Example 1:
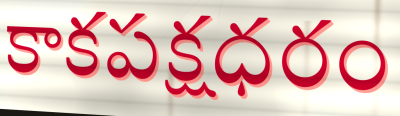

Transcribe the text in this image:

కాకపక్షధరం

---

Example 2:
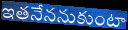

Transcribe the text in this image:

ఇతనేననుకుంటా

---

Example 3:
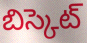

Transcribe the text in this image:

బిస్కెట్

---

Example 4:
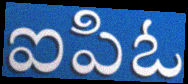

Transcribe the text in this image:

ఐపిఓ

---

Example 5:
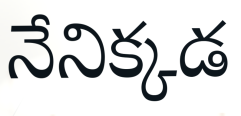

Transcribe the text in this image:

నేనిక్కడ